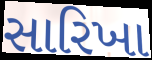
સારિખા